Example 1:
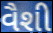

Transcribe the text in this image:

વૈશી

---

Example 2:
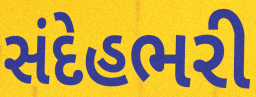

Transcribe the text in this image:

સંદેહભરી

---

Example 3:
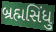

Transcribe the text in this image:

બ્રહ્મસિંધુ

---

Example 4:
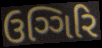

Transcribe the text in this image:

ઉગ્ગિરિ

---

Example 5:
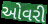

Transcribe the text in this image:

ઓવરી